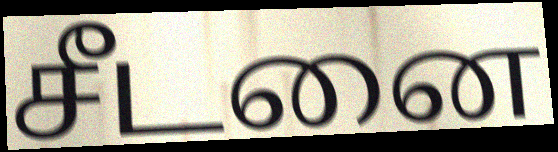
சீடனை